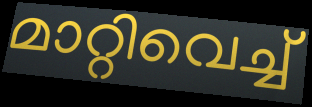
മാറ്റിവെച്ച്